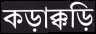
কড়াক্কড়ি